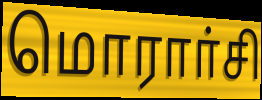
மொரார்சி